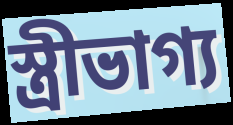
স্ত্রীভাগ্য